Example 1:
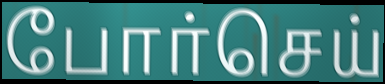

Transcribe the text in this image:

போர்செய்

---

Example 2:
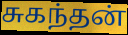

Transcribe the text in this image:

சுகந்தன்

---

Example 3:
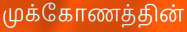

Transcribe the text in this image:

முக்கோணத்தின்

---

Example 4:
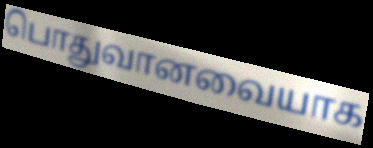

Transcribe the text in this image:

பொதுவானவையாக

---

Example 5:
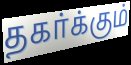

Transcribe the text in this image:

தகர்க்கும்